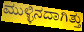
ಮುಳ್ಳಿನದಾಗಿತ್ತು